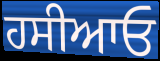
ਹਸੀਆਓ